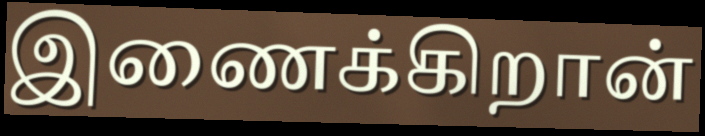
இணைக்கிறான்